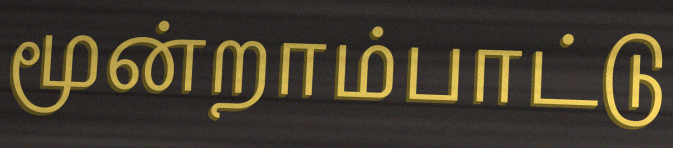
மூன்றாம்பாட்டு